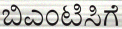
ಬಿಎಂಟಿಸಿಗೆ